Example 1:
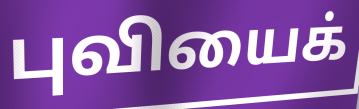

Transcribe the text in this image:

புவியைக்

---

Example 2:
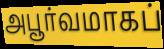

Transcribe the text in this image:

அபூர்வமாகப்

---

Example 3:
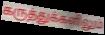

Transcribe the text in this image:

கருத்துக்களிலும்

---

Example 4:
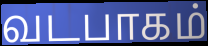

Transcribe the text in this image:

வடபாகம்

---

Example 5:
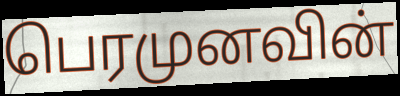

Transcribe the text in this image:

பெரமுனவின்